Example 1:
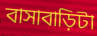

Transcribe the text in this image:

বাসাবাড়িটা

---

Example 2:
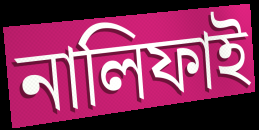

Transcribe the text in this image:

নালিফাই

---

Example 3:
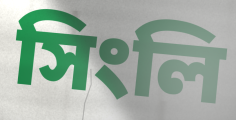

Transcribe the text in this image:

সিংলি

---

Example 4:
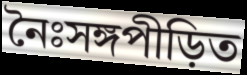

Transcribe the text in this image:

নৈঃসঙ্গপীড়িত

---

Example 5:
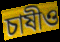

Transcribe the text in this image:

চাষীও